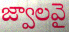
జ్వాలవై